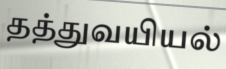
தத்துவயியல்